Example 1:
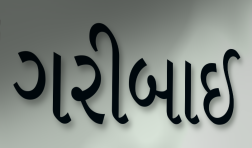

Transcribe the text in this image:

ગરીબાઈ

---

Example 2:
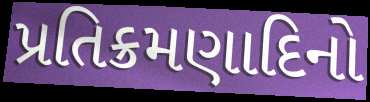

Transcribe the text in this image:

પ્રતિક્રમણાદિનો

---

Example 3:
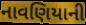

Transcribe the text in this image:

નાવણિયાની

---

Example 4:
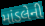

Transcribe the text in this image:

માંડલેની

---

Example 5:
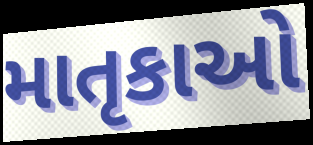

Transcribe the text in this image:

માતૃકાઓ